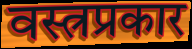
वस्त्रप्रकार